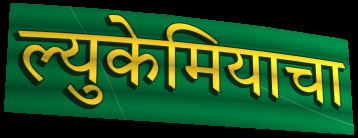
ल्युकेमियाचा